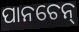
ପାନଚେନ୍